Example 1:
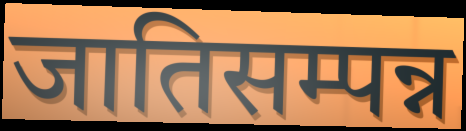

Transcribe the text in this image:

जातिसम्पन्न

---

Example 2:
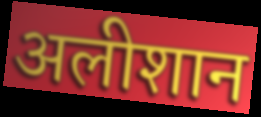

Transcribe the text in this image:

अलीशान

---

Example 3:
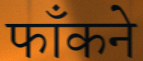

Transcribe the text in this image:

फाँकने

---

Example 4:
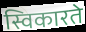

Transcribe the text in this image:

स्विकारते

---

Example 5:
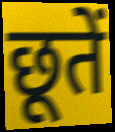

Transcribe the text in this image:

छूतें